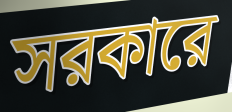
সরকারে